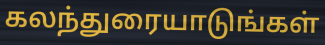
கலந்துரையாடுங்கள்